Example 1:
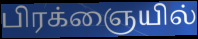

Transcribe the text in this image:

பிரக்ஞையில்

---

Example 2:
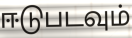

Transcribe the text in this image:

ஈடுபடவும்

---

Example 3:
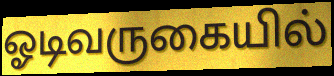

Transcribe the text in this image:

ஓடிவருகையில்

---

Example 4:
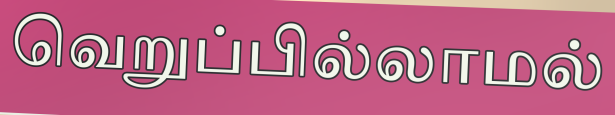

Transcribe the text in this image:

வெறுப்பில்லாமல்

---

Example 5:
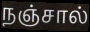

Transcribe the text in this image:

நஞ்சால்